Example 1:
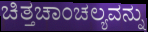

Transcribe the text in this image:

ಚಿತ್ತಚಾಂಚಲ್ಯವನ್ನು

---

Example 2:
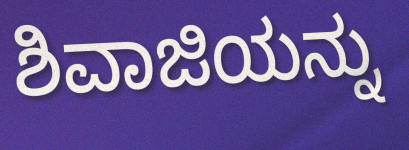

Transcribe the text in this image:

ಶಿವಾಜಿಯನ್ನು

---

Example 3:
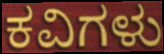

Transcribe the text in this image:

ಕವಿಗಳು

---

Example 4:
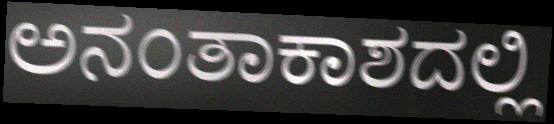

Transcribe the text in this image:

ಅನಂತಾಕಾಶದಲ್ಲಿ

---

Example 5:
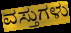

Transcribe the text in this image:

ವಸ್ತುಗಳು